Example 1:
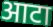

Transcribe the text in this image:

आटा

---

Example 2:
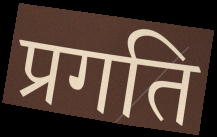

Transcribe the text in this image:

प्रगति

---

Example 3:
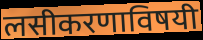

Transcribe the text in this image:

लसीकरणाविषयी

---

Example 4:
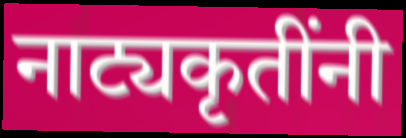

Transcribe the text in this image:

नाट्यकृतींनी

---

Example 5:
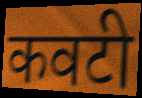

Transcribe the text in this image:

कवटी